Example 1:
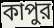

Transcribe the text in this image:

কাপুর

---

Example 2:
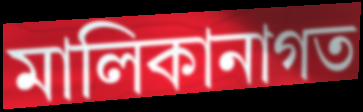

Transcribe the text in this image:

মালিকানাগত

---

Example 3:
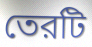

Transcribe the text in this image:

তেরটি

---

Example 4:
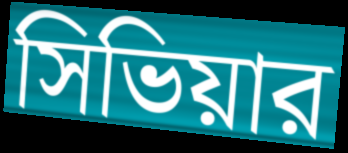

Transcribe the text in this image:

সিভিয়ার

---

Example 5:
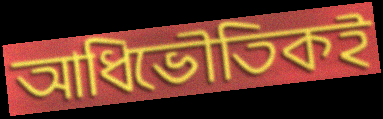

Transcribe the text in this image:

আধিভৌতিকই